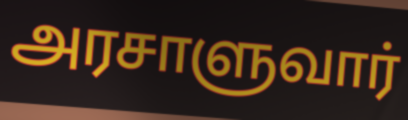
அரசாளுவார்